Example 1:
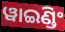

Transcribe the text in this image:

ୱାଇଣ୍ଡିଂ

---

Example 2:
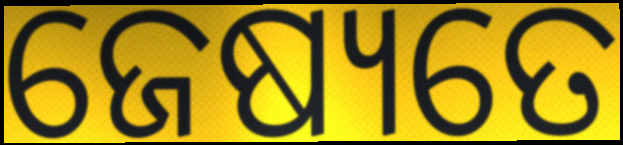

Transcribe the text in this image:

ଜେଷ୍ୟତେ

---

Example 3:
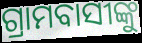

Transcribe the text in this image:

ଗ୍ରାମବାସୀଙ୍କୁ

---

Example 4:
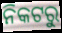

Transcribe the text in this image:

ନିକଟରୁ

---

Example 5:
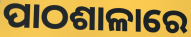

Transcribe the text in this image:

ପାଠଶାଳାରେ